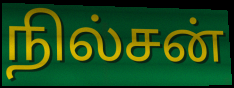
நில்சன்